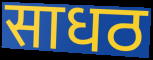
साधठ